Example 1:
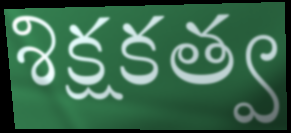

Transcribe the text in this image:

శిక్షకత్వ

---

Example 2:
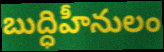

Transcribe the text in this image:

బుద్ధిహీనులం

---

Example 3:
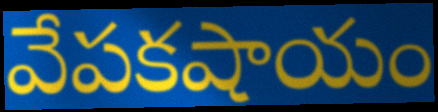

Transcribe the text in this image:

వేపకషాయం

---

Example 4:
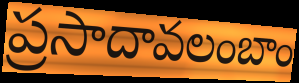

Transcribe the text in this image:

ప్రసాదావలంబాం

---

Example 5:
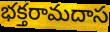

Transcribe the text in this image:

భక్తరామదాస